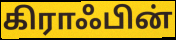
கிராஃபின்